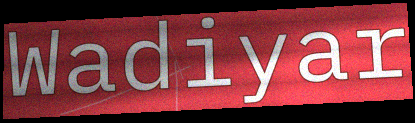
Wadiyar